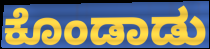
ಕೊಂಡಾಡು